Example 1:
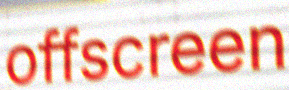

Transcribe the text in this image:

offscreen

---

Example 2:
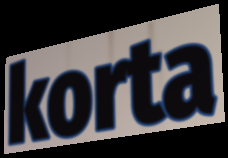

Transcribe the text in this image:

korta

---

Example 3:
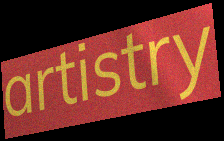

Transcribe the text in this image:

artistry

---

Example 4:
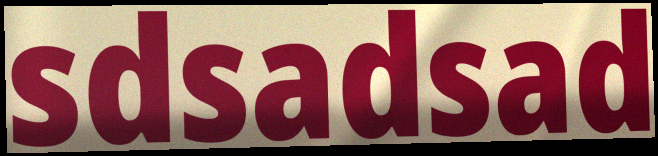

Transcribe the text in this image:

sdsadsad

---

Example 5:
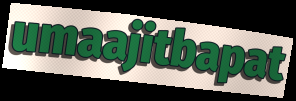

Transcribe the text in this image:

umaajitbapat